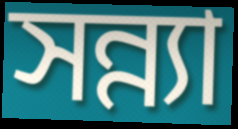
সন্ন্যা